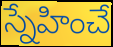
స్నేహించే